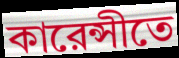
কারেন্সীতে